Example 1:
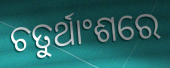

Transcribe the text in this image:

ଚତୁର୍ଥାଂଶରେ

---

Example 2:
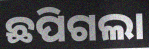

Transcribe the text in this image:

ଛପିଗଲା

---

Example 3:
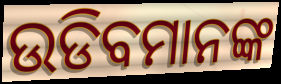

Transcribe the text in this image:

ଉଡିବମାନଙ୍କ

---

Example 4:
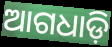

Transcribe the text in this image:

ଆଗଧାଡ଼ି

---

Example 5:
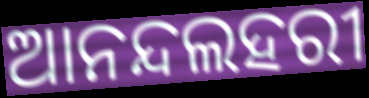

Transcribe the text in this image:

ଆନନ୍ଦଲହରୀ